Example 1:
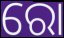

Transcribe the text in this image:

ରୋ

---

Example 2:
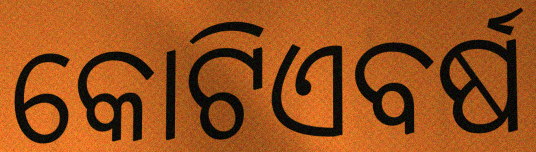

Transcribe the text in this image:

କୋଟିଏବର୍ଷ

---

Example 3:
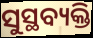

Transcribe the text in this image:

ସୁସ୍ଥବ୍ୟକ୍ତି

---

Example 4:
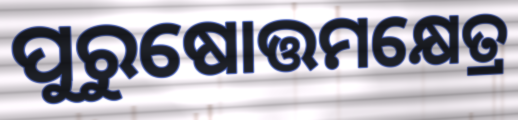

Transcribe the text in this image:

ପୁରୁଷୋତ୍ତମକ୍ଷେତ୍ର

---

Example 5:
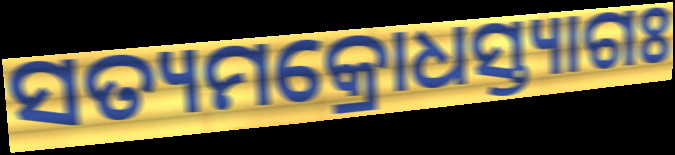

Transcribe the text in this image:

ସତ୍ୟମକ୍ରୋଧସ୍ତ୍ୟାଗଃ